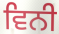
ਵਿਨੀ